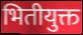
भितीयुक्त